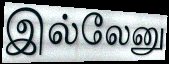
இல்லேனு